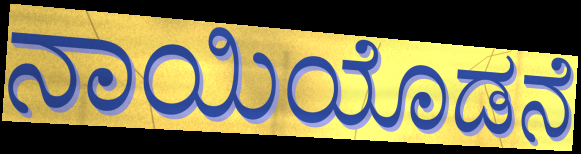
ನಾಯಿಯೊಡನೆ